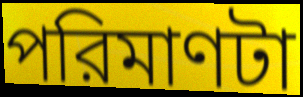
পরিমাণটা